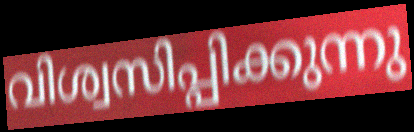
വിശ്വസിപ്പിക്കുന്നു